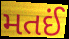
મતઈં